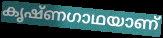
കൃഷ്ണഗാഥയാണ്